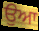
ਉਆ